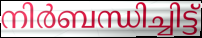
നിർബന്ധിച്ചിട്ട്